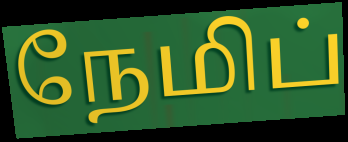
நேமிப்